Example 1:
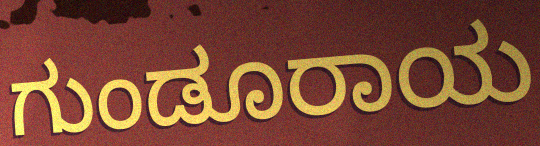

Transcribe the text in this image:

ಗುಂಡೂರಾಯ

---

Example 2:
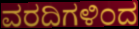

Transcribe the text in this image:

ವರದಿಗಳಿಂದ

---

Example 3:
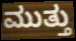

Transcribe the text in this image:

ಮುತ್ತು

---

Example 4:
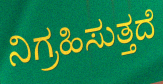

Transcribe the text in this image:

ನಿಗ್ರಹಿಸುತ್ತದೆ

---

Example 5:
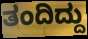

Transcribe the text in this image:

ತಂದಿದ್ದು